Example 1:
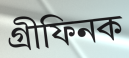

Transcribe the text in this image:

গ্ৰীফিনক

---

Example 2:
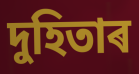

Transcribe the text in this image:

দুহিতাৰ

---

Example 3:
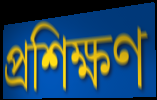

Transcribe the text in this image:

প্ৰশিক্ষণ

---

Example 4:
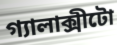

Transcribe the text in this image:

গ্যালাক্সীটো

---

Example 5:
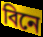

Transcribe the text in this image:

বিনে